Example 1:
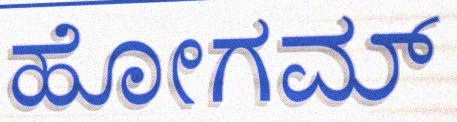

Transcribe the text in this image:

ಹೋಗಮ್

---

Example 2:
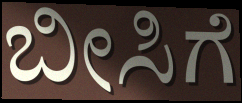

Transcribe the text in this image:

ಬೀಸಿಗೆ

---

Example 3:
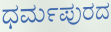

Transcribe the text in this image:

ಧರ್ಮಪುರದ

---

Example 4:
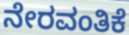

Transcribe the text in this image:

ನೇರವಂತಿಕೆ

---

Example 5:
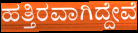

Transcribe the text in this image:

ಹತ್ತಿರವಾಗಿದ್ದೇವೆ